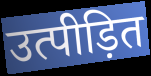
उत्पीड़ित